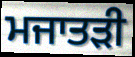
ਮਜਾਤੜੀ